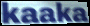
kaaka